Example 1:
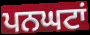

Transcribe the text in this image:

ਪਨਘਟਾਂ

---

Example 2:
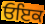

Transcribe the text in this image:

ਓਇਕ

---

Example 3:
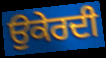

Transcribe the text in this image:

ਉਕੇਰਦੀ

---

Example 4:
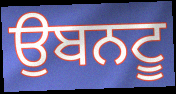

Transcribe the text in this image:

ਉਬਨਟੂ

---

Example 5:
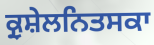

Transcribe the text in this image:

ਕ੍ਰੁਸ਼ੇਲਨਿਤਸਕਾ